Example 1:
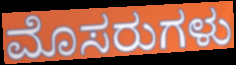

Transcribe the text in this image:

ಮೊಸರುಗಳು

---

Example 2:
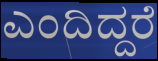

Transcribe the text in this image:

ಎಂದಿದ್ದರೆ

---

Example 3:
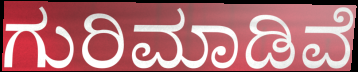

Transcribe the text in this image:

ಗುರಿಮಾಡಿವೆ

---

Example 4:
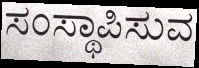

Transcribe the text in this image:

ಸಂಸ್ಥಾಪಿಸುವ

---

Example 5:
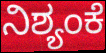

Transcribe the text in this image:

ನಿಶ್ಯಂಕೆ